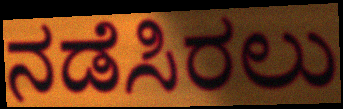
ನಡೆಸಿರಲು